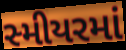
સ્મીયરમાં